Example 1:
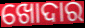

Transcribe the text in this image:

ଖୋଦାର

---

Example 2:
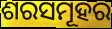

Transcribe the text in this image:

ଶରସମୂହର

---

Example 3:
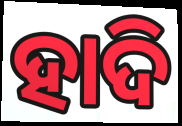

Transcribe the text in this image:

ହାଦି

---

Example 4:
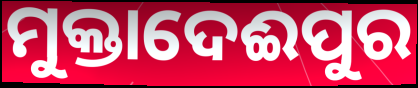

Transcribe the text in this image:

ମୁକ୍ତାଦେଈପୁର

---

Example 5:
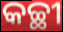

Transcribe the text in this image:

କଚ୍ଛୀ